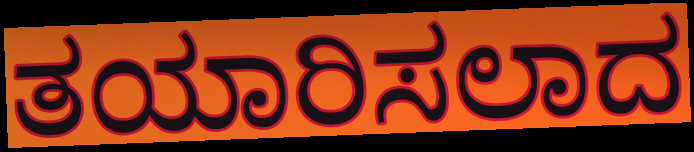
ತಯಾರಿಸಲಾದ